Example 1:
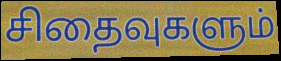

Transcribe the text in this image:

சிதைவுகளும்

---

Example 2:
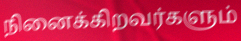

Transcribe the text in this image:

நினைக்கிறவர்களும்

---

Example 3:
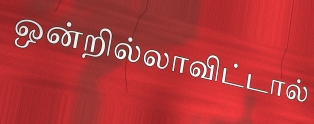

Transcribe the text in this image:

ஒன்றில்லாவிட்டால்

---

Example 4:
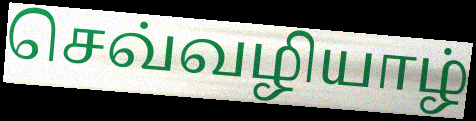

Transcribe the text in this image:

செவ்வழியாழ்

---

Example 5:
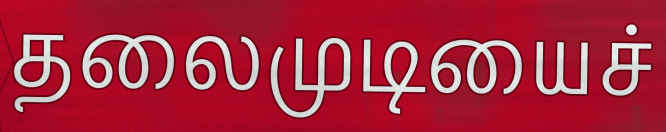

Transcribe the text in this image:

தலைமுடியைச்